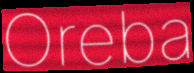
Oreba